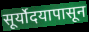
सूर्योदयापासून